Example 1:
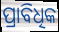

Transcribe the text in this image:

ପ୍ରାବିଧିକ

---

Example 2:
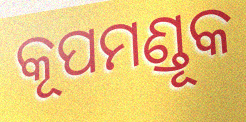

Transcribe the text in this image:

କୂପମଣ୍ଡୂକ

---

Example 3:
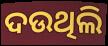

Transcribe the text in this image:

ଦଉଥିଲି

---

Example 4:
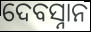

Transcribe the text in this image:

ଦେବସ୍ନାନ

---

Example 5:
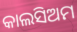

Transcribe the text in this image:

କାଲସିଅମ